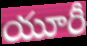
యూరీ